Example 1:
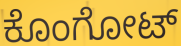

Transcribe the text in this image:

ಕೊಂಗೋಟ್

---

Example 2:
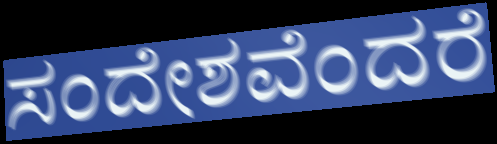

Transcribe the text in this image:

ಸಂದೇಶವೆಂದರೆ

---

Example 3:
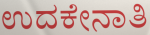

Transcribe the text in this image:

ಉದಕೇನಾತಿ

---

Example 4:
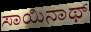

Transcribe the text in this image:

ಸಾಯಿನಾಥ್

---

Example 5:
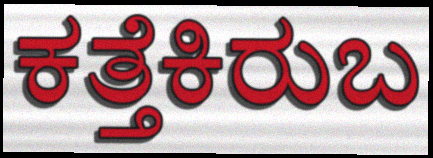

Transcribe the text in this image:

ಕತ್ತೆಕಿರುಬ